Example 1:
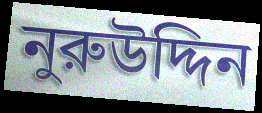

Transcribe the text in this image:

নুরুউদ্দিন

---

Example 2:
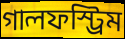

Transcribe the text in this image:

গালফস্ট্রিম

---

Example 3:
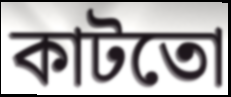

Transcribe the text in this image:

কাটতো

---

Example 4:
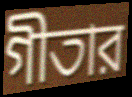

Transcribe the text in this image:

গীতার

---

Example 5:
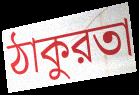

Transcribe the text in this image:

ঠাকুরতা